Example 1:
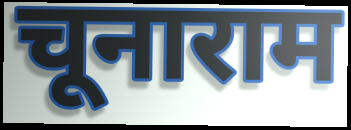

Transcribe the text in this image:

चूनाराम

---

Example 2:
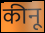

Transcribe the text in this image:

कीनू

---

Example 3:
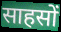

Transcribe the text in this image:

साहसों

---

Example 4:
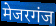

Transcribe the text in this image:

मेजरगंज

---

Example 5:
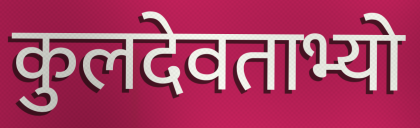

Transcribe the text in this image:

कुलदेवताभ्यो